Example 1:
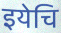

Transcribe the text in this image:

इयेचि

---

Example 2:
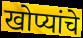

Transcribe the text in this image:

खोप्यांचे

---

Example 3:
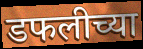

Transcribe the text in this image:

डफलीच्या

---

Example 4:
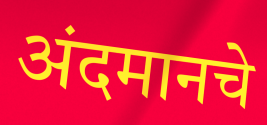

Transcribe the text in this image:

अंदमानचे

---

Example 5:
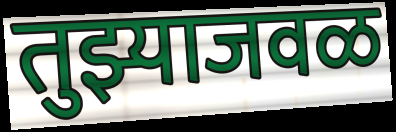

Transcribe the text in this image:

तुझ्याजवळ